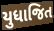
યુધાજિત